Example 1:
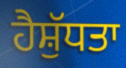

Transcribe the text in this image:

ਹੈਸ਼ੁੱਧਤਾ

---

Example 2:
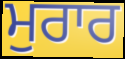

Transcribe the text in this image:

ਮੁਰਾਰ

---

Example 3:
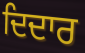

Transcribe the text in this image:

ਦਿਦਾਰ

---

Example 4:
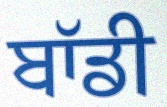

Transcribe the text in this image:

ਬਾੱਡੀ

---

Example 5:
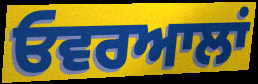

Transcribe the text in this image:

ਓਵਰਆਲਾਂ